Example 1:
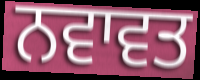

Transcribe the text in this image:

ਨਵਾਵਤ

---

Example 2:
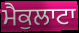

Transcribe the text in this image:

ਮੈਕੁਲਾਟਾ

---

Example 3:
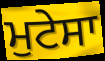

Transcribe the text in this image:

ਮੁਟੇਸਾ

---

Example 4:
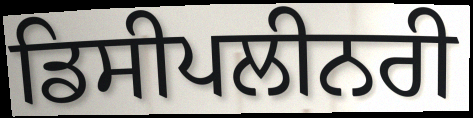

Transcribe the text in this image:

ਡਿਸੀਪਲੀਨਰੀ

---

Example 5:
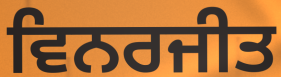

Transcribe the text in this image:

ਵਿਨਰਜੀਤ